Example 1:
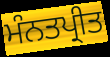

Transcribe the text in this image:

ਮੰਨਤਪ੍ਰੀਤ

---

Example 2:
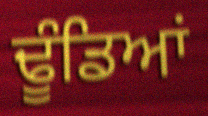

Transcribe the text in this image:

ਢੂੰਡਿਆਂ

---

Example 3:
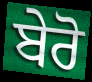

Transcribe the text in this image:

ਬੇਰੋ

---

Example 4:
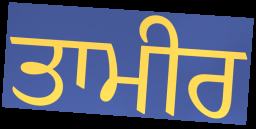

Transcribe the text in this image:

ਤਾਮੀਰ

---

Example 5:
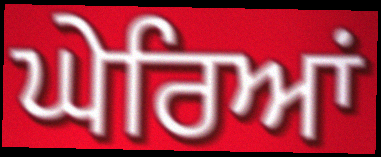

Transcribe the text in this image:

ਘੇਰਿਆਂ